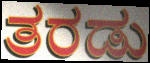
ತರಡು